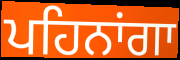
ਪਹਿਨਾਂਗਾ